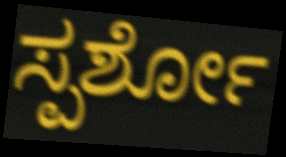
ಸ್ಪರ್ಶೋ